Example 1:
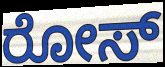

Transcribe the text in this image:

ರೋಸ್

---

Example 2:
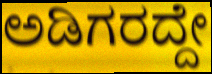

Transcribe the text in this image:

ಅಡಿಗರದ್ದೇ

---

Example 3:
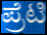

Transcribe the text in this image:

ಪ್ರೆಟಿ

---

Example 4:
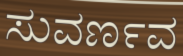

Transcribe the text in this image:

ಸುವರ್ಣವ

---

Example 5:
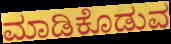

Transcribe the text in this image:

ಮಾಡಿಕೊಡುವ